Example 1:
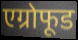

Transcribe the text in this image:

एग्रोफूड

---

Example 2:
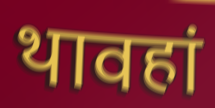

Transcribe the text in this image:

थावहां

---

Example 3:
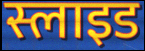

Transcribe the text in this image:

स्‍लाइड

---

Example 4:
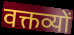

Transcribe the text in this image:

वक्तव्यों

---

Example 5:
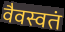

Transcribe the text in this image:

वैवस्वतं